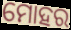
ମୋହର